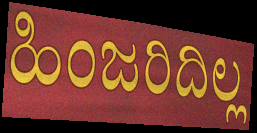
ಹಿಂಜರಿದಿಲ್ಲ